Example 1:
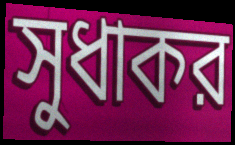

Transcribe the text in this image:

সুধাকর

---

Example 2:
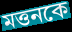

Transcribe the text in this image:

মত্তনকে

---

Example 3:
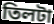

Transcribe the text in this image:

তিলটা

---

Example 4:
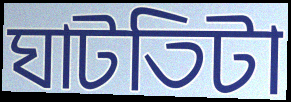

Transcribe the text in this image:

ঘাটতিটা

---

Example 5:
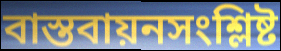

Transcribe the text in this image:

বাস্তবায়নসংশ্লিষ্ট